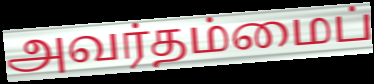
அவர்தம்மைப்